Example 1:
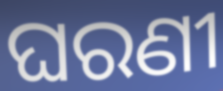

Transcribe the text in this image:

ଘରଣୀ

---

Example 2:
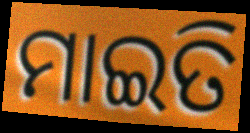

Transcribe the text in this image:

ମାଇତି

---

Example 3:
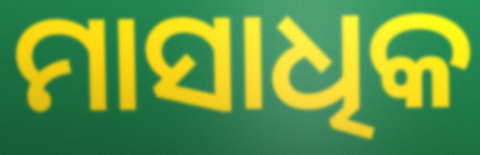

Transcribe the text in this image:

ମାସାଧିକ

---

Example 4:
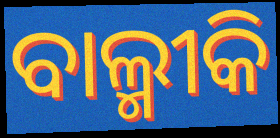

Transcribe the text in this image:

ବାଲ୍ମୀକି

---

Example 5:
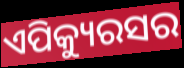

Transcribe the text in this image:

ଏପିକ୍ୟୁରସର